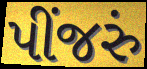
પીંજરું